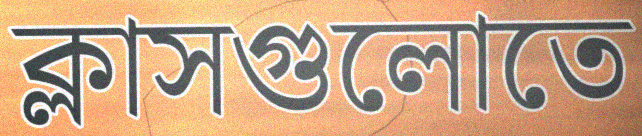
ক্লাসগুলোতে